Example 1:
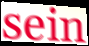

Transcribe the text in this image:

sein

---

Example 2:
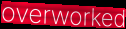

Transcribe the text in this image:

overworked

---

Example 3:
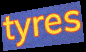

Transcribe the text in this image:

tyres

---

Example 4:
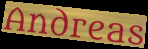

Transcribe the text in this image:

Andreas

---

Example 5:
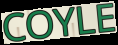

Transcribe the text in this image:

COYLE